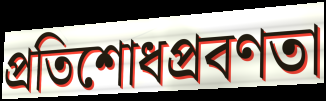
প্রতিশোধপ্রবণতা